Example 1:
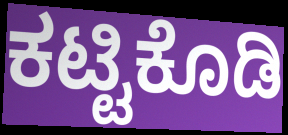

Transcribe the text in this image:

ಕಟ್ಟಿಕೊಡಿ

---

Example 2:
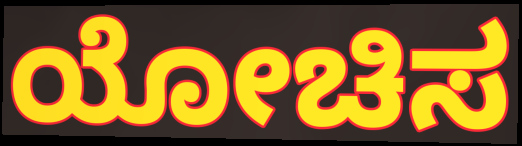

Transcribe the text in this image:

ಯೋಚಿಸ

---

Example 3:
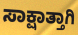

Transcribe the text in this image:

ಸಾಕ್ಷಾತ್ತಾಗಿ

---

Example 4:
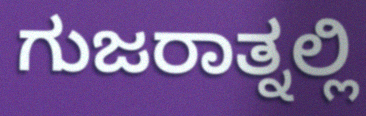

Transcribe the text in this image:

ಗುಜರಾತ್ನಲ್ಲಿ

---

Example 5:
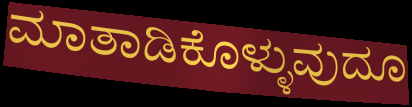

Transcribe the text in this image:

ಮಾತಾಡಿಕೊಳ್ಳುವುದೂ